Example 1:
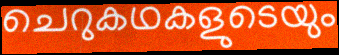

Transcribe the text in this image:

ചെറുകഥകളുടെയും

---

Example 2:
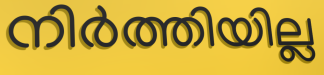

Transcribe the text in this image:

നിർത്തിയില്ല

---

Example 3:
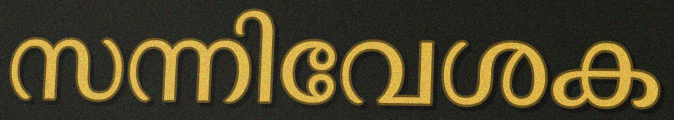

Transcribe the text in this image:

സന്നിവേശക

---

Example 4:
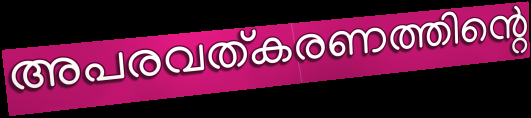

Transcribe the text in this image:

അപരവത്കരണത്തിന്റെ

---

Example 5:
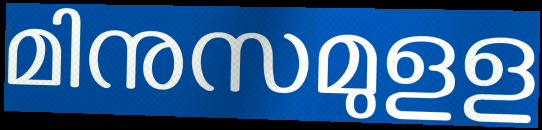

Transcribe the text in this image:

മിനുസമുളള